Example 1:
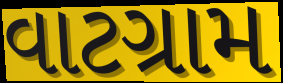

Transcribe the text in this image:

વાટગ્રામ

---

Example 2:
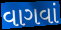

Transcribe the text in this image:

વાગવાં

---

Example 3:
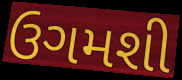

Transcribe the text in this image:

ઉગમશી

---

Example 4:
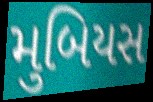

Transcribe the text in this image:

મુબિયસ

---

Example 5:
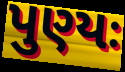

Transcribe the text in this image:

પુણ્યઃ